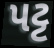
પટ્ટ